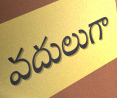
వదులుగా